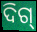
ଦିଗ୍